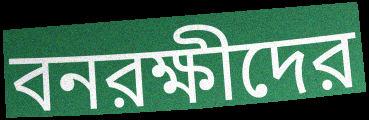
বনরক্ষীদের